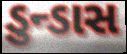
ડુન્ડાસ